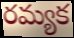
రమ్యక